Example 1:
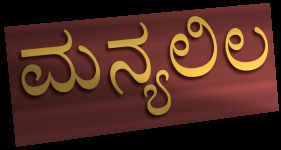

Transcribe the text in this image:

ಮನ್ಯಲಿಲ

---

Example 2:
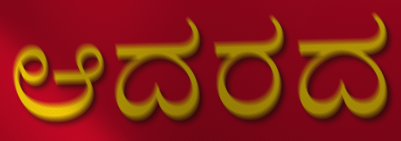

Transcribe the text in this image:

ಆದರದ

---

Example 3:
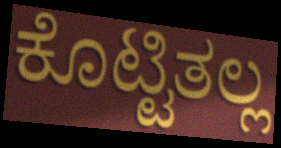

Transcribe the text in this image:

ಕೊಟ್ಟಿತಲ್ಲ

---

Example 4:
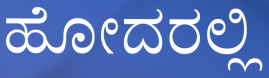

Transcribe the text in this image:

ಹೋದರಲ್ಲಿ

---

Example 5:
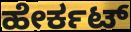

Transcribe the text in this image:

ಹೇರ್ಕಟ್